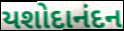
યશોદાનંદન